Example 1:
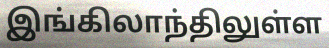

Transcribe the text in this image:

இங்கிலாந்திலுள்ள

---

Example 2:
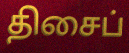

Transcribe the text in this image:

திசைப்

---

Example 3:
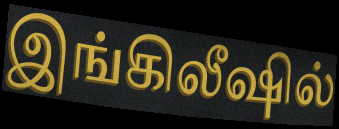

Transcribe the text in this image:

இங்கிலீஷில்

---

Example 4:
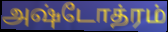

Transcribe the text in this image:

அஷ்டோத்ரம்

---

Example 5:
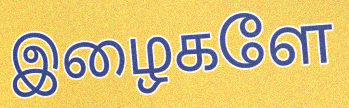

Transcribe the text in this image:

இழைகளே